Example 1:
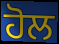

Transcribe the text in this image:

ਹੋਲ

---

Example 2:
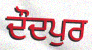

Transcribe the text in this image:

ਦੌਦਪੁਰ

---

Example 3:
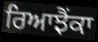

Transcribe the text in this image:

ਰਿਆਝੈਂਕਾ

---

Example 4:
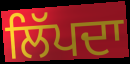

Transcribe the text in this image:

ਲਿੱਪਦਾ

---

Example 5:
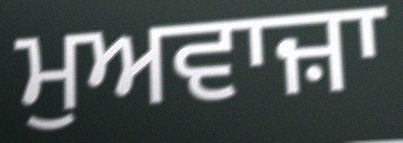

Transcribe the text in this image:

ਮੁਅਵਾਜ਼ਾ